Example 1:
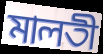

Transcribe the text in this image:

মালতী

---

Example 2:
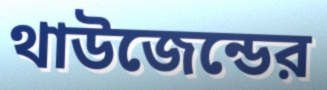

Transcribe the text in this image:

থাউজেন্ডের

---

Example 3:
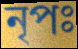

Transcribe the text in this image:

নৃপঃ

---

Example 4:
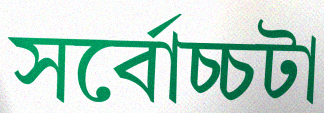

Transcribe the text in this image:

সর্বোচ্চটা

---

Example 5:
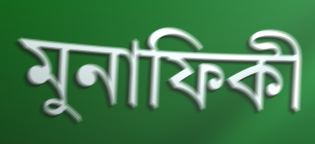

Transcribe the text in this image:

মুনাফিকী